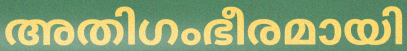
അതിഗംഭീരമായി